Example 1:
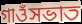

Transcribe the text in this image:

গাওঁসভাত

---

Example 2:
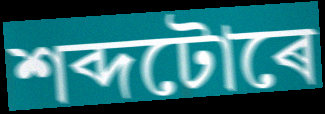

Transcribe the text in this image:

শব্দটোৰে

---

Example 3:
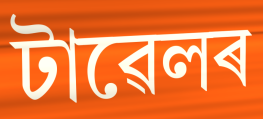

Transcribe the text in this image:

টাৱেলৰ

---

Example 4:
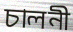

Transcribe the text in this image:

চালনী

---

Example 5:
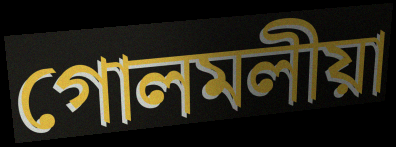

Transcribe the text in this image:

গোলমলীয়া